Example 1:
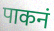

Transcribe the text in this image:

पाकनं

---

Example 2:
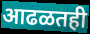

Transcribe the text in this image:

आढळतही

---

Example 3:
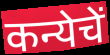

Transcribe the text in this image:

कन्येचें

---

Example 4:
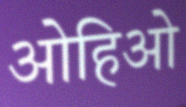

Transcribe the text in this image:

ओहिओ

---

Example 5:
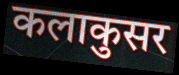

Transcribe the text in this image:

कलाकुसर